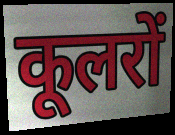
कूलरों